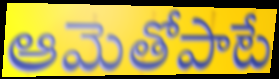
ఆమెతోపాటే